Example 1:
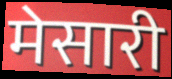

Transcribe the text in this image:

मेसारी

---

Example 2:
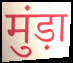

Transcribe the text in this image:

मुंड़ा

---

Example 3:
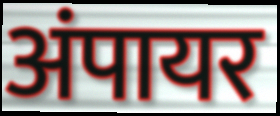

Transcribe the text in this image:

अंपायर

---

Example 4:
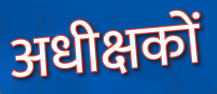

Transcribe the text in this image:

अधीक्षकों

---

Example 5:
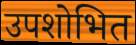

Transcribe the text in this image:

उपशोभित